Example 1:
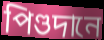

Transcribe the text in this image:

পিণ্ডদানে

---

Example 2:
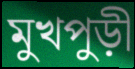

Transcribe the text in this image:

মুখপুড়ী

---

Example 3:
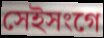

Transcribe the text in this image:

সেইসংগে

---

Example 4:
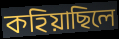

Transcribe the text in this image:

কহিয়াছিলে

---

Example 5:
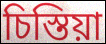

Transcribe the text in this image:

চিস্তিয়া